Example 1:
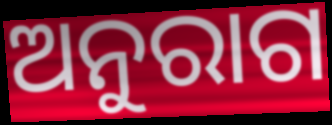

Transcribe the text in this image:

ଅନୁରାଗ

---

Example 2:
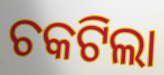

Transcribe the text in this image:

ଚକଟିଲା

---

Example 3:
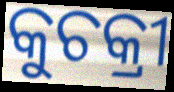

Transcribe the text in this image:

କୁଚକ୍ରୀ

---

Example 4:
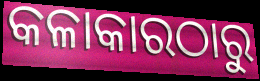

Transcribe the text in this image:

କଳାକାରଠାରୁ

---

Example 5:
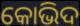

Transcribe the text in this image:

କୋଭିଦ